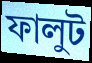
ফালুট